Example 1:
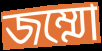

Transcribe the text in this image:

জম্মো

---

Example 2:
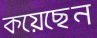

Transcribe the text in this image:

কয়েছেন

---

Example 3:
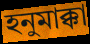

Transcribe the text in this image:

হনুমাক্কা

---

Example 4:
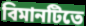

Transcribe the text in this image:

বিমানটিতে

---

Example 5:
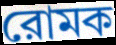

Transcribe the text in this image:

রোমক